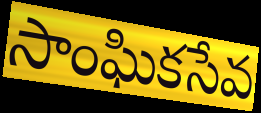
సాంఘికసేవ